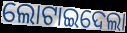
ଲୋଟାଇଦେଲା